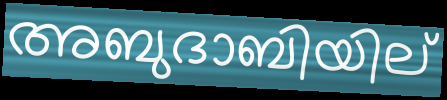
അബുദാബിയില്